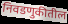
निवडणुकीतील